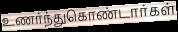
உணர்ந்துகொண்டார்கள்